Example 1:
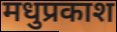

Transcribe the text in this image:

मधुप्रकाश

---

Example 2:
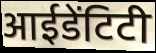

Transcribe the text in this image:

आईडेंटिटी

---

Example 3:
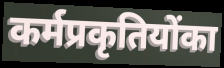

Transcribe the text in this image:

कर्मप्रकृतियोंका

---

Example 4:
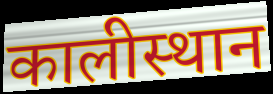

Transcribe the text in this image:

कालीस्थान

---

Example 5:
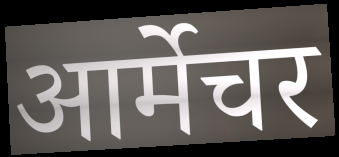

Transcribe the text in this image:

आर्मेचर